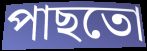
পাছতো